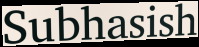
Subhasish